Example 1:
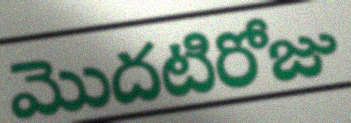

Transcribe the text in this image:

మొదటిరోజు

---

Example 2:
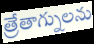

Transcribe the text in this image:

త్రేతాగ్నులను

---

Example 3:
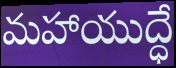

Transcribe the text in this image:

మహాయుద్ధే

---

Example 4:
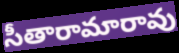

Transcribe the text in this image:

సీతారామారావు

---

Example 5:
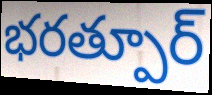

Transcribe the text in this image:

భరత్పూర్